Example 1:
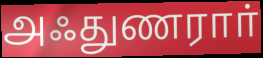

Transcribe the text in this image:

அஃதுணரார்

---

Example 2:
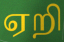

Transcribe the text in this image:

ஏறி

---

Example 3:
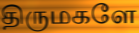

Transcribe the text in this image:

திருமகளே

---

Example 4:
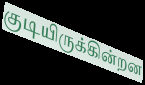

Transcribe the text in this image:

குடியிருக்கின்றன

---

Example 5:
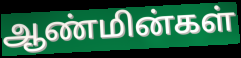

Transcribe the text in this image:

ஆண்மின்கள்